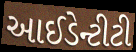
આઈડેન્ટીટી